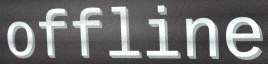
offline